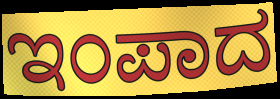
ಇಂಪಾದ